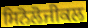
ਸਿਨੋਲੋਜੀਕਲ